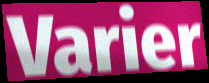
Varier